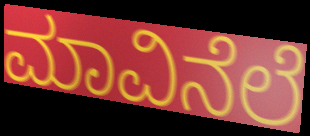
ಮಾವಿನೆಲೆ